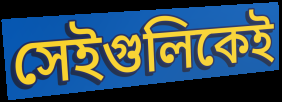
সেইগুলিকেই